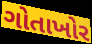
ગોતાખોર